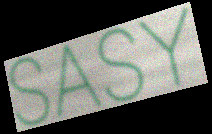
SASY